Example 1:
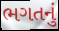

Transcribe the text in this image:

ભગતનું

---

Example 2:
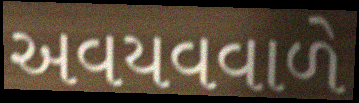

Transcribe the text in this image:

અવયવવાળે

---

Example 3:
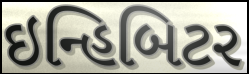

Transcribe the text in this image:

ઇન્હિબિટર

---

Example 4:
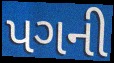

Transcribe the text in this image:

પગની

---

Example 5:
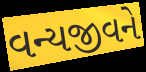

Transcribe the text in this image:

વન્યજીવને